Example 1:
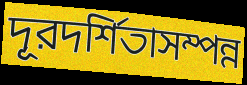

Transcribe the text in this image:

দূরদর্শিতাসম্পন্ন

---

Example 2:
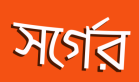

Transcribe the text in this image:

সর্গের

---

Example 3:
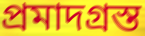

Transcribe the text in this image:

প্রমাদগ্রস্ত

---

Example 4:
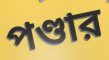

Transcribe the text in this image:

পণ্ডার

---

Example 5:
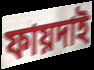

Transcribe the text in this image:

ফায়দাই